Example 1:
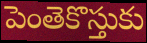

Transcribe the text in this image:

పెంతెకొస్తుకు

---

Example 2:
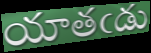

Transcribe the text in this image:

యాతఁడు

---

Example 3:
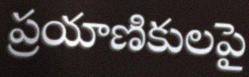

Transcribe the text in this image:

ప్రయాణికులపై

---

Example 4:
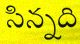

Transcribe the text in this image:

సిన్నది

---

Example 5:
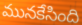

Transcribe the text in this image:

మునకేసింది